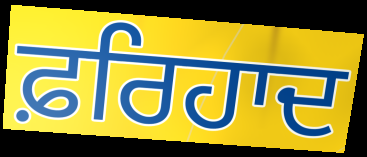
ਫ਼ਰਿਹਾਦ